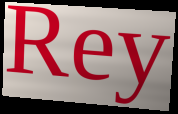
Rey